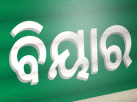
ବିୟାର